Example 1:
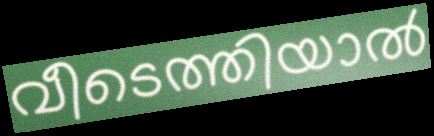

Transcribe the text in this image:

വീടെത്തിയാൽ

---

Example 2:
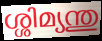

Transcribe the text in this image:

ശ്ശിമ്യന്തു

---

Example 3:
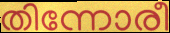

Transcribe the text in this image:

തിന്നോരീ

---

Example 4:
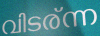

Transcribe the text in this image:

വിടര്ന്ന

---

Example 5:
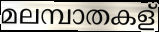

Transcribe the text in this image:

മലമ്പാതകള്